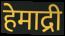
हेमाद्री